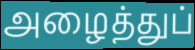
அழைத்துப்